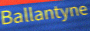
Ballantyne